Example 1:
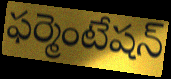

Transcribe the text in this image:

ఫర్మెంటేషన్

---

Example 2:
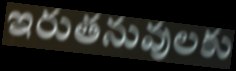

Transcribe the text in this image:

ఇరుతనువులకు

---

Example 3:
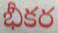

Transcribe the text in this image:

భీకర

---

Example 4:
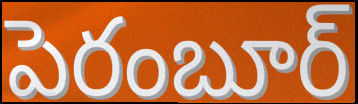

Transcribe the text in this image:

పెరంబూర్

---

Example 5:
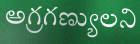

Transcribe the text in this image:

అగ్రగణ్యులని